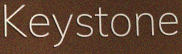
Keystone